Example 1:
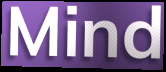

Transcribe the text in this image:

Mind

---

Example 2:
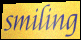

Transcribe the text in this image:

smiling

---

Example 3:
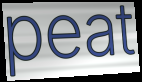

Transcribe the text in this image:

peat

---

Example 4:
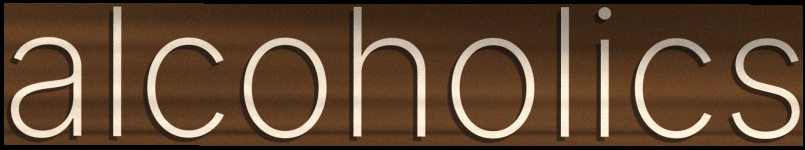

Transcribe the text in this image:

alcoholics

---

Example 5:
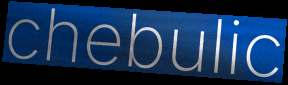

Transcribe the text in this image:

chebulic